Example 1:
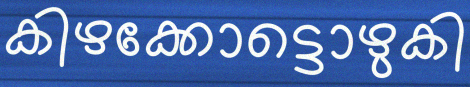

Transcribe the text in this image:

കിഴക്കോട്ടൊഴുകി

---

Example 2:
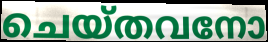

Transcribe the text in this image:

ചെയ്തവനോ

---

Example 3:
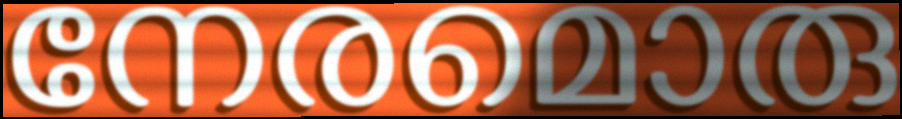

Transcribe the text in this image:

നേരമൊരു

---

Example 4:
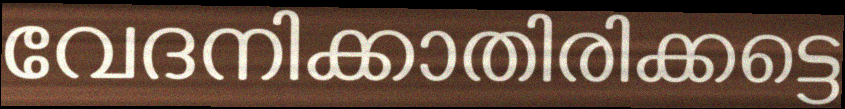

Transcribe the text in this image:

വേദനിക്കാതിരിക്കട്ടെ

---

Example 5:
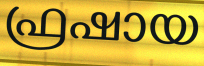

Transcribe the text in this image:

ഫ്രഷായ